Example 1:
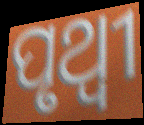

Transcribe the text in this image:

ପୃଥ୍ଵୀ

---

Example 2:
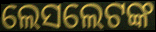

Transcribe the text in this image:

ଲେସଲେଟଙ୍କ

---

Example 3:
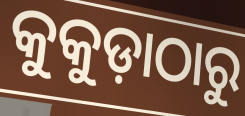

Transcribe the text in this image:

କୁକୁଡ଼ାଠାରୁ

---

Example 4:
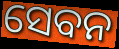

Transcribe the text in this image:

ସେବନ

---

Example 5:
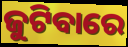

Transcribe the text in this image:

ଜୁଟିବାରେ